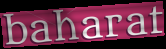
baharat